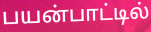
பயன்பாட்டில்